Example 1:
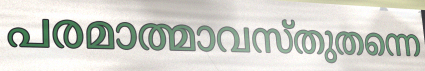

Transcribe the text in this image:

പരമാത്മാവസ്തുതന്നെ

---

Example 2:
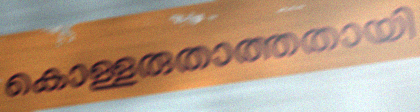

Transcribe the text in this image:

കൊള്ളരുതാത്തതായി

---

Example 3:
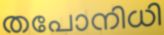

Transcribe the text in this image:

തപോനിധി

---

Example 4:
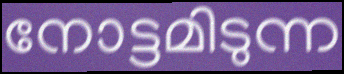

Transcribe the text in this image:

നോട്ടമിടുന്ന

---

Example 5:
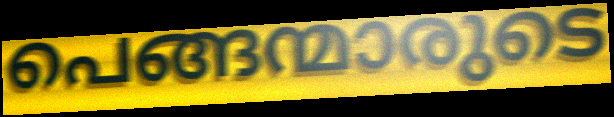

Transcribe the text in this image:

പെങ്ങന്മാരുടെ